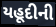
યહૂદીની